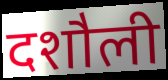
दशौली